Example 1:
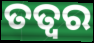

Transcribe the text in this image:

ତତ୍ଵର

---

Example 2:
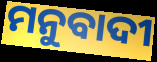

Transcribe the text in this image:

ମନୁବାଦୀ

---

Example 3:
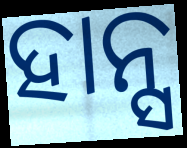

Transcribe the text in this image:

ହାନ୍ସ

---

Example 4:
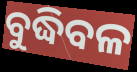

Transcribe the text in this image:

ବୁଦ୍ଧିବଳ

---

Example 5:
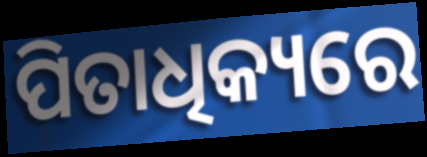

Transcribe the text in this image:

ପିତାଧିକ୍ୟରେ